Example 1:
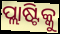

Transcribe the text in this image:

ପ୍ଲାଷ୍ଟିକ୍କୁ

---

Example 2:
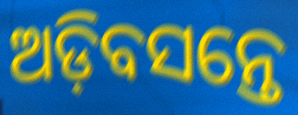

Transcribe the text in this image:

ଅଡ଼ିବସନ୍ତେ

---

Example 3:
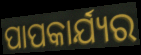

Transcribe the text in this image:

ପାପକାର୍ଯ୍ୟର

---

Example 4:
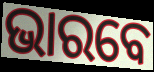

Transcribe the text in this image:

ଭାରବେ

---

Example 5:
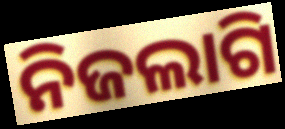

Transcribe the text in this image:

ନିଜଲାଗି